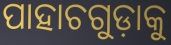
ପାହାଚଗୁଡ଼ାକୁ